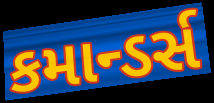
કમાન્ડર્સ